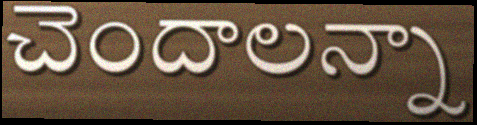
చెందాలన్నా